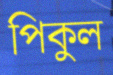
পিকুল